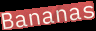
Bananas